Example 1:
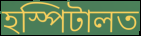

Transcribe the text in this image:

হস্পিটালত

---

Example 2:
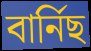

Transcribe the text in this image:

বাৰ্নিছ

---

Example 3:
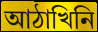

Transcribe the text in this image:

আঠাখিনি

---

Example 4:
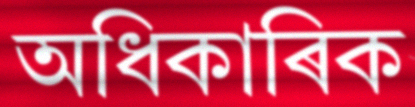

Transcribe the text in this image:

অধিকাৰিক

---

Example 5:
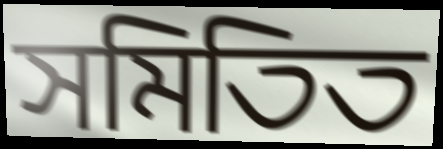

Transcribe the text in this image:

সমিতিত